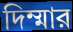
দিম্মার